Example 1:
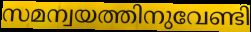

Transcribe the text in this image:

സമന്വയത്തിനുവേണ്ടി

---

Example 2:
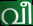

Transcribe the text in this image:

വീ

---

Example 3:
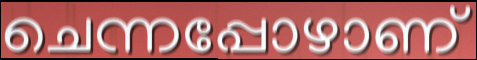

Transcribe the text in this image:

ചെന്നപ്പോഴാണ്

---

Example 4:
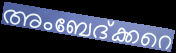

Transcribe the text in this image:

അംബേദ്ക്കറെ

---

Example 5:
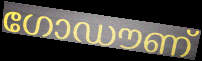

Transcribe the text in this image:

ഗോഡൗണ്